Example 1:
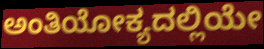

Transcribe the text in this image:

ಅಂತಿಯೋಕ್ಯದಲ್ಲಿಯೇ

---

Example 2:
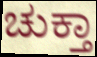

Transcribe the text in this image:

ಚುಕ್ತಾ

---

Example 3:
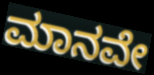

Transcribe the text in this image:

ಮಾನವೇ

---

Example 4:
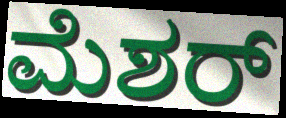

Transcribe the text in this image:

ಮೆಶರ್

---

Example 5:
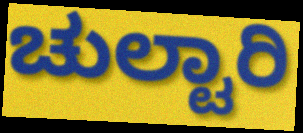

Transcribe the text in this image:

ಚುಲ್ಟಾರಿ